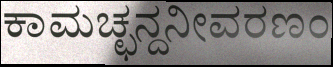
ಕಾಮಚ್ಛನ್ದನೀವರಣಂ